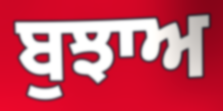
ਬੁਝਾਅ